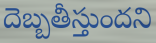
దెబ్బతీస్తుందని